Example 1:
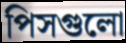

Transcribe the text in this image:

পিসগুলো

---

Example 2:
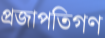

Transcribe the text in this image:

প্রজাপতিগণ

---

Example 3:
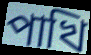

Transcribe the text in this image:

পাখি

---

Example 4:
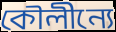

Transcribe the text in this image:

কৌলীন্যে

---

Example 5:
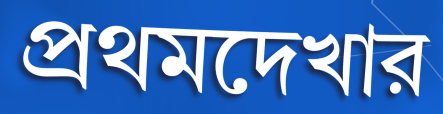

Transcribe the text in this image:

প্রথমদেখার